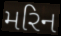
મરિન